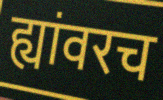
ह्यांवरच